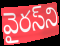
వైరస్‌ని